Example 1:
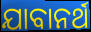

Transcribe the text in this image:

ଯାବାନର୍ଥ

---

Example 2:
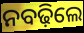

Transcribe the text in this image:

ନବଢ଼ିଲେ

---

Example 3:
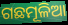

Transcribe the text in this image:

ଗଛମୂଳିଆ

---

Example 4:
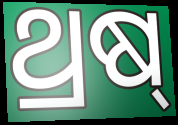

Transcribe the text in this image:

ଥ୍ରଷ୍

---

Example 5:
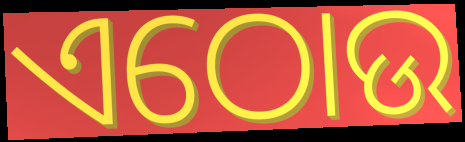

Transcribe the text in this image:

ଏଠୋଉ